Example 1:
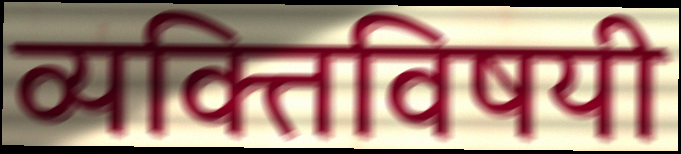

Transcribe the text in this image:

व्यक्तिविषयी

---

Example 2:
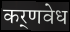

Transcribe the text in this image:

कर्णवेध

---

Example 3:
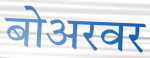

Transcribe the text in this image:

बोअरवर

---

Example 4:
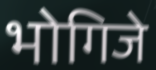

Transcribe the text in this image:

भोगिजे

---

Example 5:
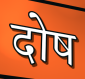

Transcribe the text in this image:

दोष